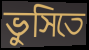
ভুসিতে